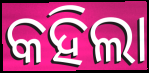
କହିଲା